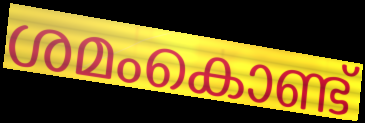
ശമംകൊണ്ട്